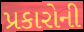
પ્રકારોની